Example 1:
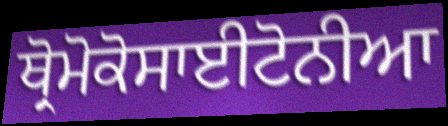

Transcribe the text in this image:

ਥ੍ਰੋਮੋਕੋਸਾਈਟੋਨੀਆ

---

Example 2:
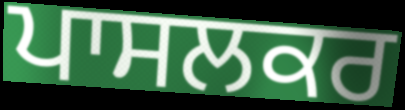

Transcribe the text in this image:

ਪਾਸਲਕਰ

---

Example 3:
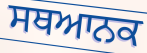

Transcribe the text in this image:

ਸਥਆਨਕ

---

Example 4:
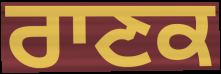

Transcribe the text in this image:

ਰਾਣਕ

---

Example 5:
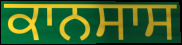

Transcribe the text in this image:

ਕਾਨਸਾਸ